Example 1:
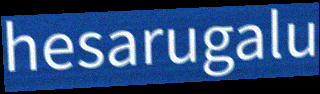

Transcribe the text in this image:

hesarugalu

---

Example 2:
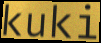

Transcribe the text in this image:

kuki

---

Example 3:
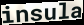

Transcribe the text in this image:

insula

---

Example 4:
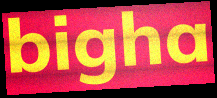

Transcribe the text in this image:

bigha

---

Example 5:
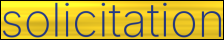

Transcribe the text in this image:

solicitation